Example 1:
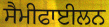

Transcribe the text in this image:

ਸੈਮੀਫਾਈਲਨ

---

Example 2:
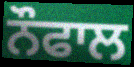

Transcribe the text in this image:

ਨੌਫਾਲ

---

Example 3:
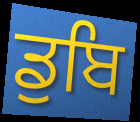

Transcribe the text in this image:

ਡੁਬਿ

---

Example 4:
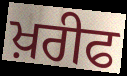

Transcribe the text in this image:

ਖ਼ਰੀਫ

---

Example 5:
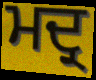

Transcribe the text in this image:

ਮਦ੍ਰ